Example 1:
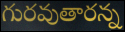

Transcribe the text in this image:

గురవుతారన్న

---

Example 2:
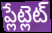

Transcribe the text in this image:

ప్లేట్లెట్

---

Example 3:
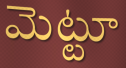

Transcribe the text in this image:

మెట్టూ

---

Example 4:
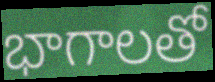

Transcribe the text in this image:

భాగాలతో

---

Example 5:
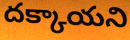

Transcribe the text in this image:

దక్కాయని